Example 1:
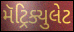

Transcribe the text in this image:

મૅટ્રિક્યુલેટ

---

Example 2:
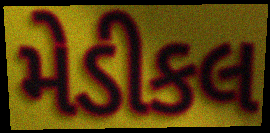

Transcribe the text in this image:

મેડીકલ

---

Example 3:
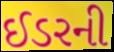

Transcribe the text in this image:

ઈડરની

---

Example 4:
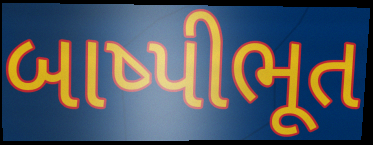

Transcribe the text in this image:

બાષ્પીભૂત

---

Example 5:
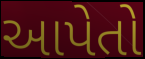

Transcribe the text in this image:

આપેતો